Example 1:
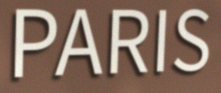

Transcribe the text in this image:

PARIS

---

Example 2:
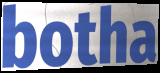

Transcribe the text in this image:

botha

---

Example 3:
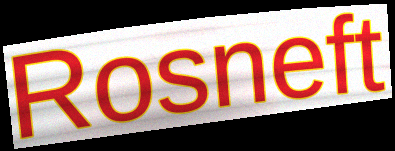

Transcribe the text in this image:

Rosneft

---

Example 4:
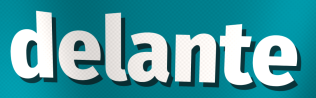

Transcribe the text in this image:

delante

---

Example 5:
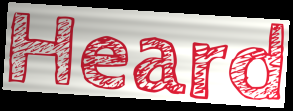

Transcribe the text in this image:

Heard